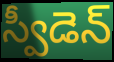
స్వీడెన్